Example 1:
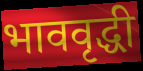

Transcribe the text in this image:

भाववृद्धी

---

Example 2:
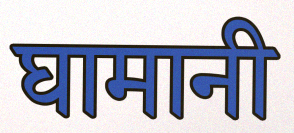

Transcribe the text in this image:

घामानी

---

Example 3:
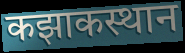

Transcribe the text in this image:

कझाकस्थान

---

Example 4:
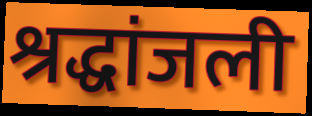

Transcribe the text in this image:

श्रद्धांजली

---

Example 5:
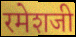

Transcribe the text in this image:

रमेशजी